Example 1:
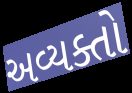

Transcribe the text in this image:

અવ્યક્તો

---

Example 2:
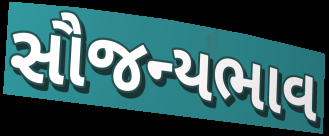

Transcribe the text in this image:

સૌજન્યભાવ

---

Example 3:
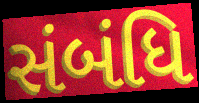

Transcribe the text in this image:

સંબંધિ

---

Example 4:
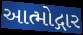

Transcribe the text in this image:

આત્મોદ્ગાર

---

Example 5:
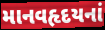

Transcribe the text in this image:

માનવહૃદયનાં